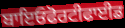
ਬਾਇਓਫੋਰਟੀਫਾਈਡ